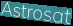
Astrosat